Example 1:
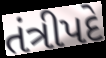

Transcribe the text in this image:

તંત્રીપદે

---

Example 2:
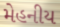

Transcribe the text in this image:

મેહનીય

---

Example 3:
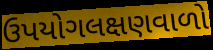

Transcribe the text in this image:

ઉપયોગલક્ષણવાળો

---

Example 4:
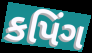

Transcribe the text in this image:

કપિંગ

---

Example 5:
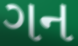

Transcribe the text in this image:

ગન